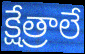
క్షేత్రాలే